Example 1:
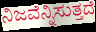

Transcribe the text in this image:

ನಿಜವೆನ್ನಿಸುತ್ತದೆ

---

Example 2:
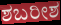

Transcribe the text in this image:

ಶಬರೀಶ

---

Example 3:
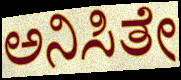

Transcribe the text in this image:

ಅನಿಸಿತೇ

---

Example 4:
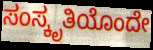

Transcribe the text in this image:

ಸಂಸ್ಕೃತಿಯೊಂದೇ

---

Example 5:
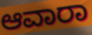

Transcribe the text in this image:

ಆವಾರಾ